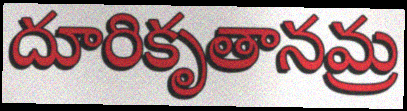
దూరికృతానమ్ర